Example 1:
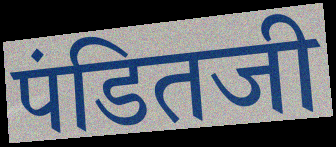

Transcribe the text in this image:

पंडितजी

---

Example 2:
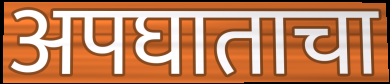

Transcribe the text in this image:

अपघाताचा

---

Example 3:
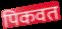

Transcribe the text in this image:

पिकवत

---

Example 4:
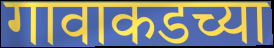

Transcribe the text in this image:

गावाकडच्या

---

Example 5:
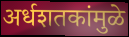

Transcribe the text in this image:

अर्धशतकांमुळे